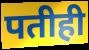
पतीही